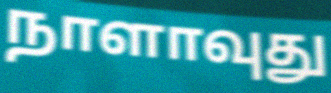
நாளாவுது